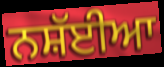
ਨਸ਼ੱਈਆ